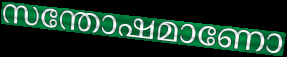
സന്തോഷമാണോ